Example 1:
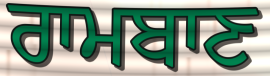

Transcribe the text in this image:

ਰਾਮਬਾਣ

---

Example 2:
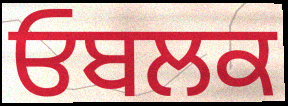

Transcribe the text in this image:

ਓਬਲਕ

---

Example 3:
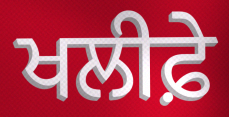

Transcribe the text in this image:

ਖਲੀਫ਼ੇ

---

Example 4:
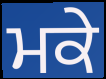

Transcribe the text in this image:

ਮਕੇ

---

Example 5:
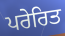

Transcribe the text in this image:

ਪਰੇਰਿਤ